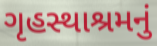
ગૃહસ્થાશ્રમનું